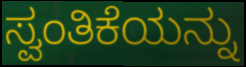
ಸ್ವಂತಿಕೆಯನ್ನು